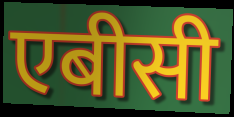
एबीसी